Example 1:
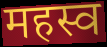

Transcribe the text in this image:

महस्व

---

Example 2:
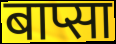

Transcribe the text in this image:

बाप्सा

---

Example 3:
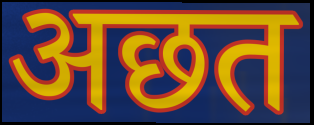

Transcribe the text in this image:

अछत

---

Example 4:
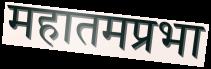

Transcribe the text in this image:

महातमप्रभा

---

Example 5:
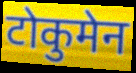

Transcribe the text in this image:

टोकुमेन